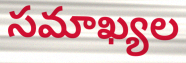
సమాఖ్యల